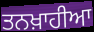
ਤਨਖ਼ਾਹੀਆ